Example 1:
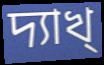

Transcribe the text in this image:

দ্যাখ্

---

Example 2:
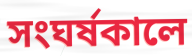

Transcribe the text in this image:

সংঘর্ষকালে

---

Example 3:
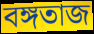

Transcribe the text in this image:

বঙ্গতাজ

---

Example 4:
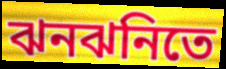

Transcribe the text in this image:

ঝনঝনিতে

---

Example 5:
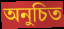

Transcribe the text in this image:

অনুচিত